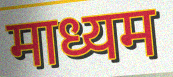
माध्यम